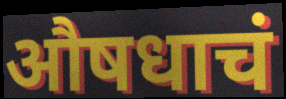
औषधाचं